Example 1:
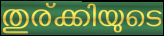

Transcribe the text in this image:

തുര്ക്കിയുടെ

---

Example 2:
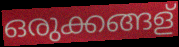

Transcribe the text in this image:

ഒരുക്കങ്ങള്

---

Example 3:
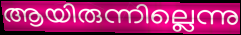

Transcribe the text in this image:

ആയിരുന്നില്ലെന്നു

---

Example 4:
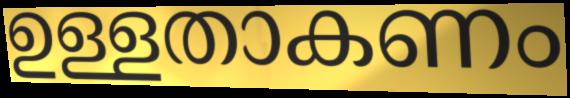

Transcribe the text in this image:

ഉള്ളതാകണം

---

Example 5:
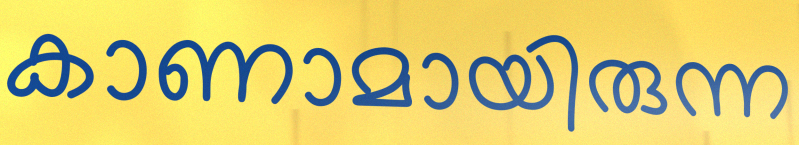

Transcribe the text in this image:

കാണാമായിരുന്ന